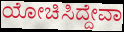
ಯೋಚಿಸಿದ್ದೇವಾ